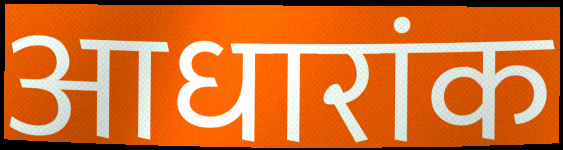
आधारांक